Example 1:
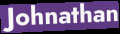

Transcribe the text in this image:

Johnathan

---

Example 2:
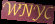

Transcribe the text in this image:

WNYC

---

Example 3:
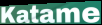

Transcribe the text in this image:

Katame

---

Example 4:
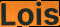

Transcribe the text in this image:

Lois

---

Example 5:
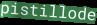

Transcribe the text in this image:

pistillode